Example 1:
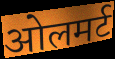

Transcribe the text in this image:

ओलमर्ट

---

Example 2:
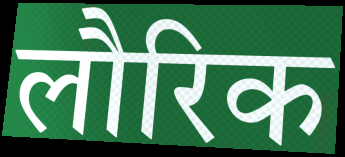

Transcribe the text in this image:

लौरिक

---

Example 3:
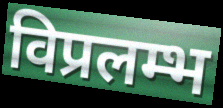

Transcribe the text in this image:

विप्रलम्भ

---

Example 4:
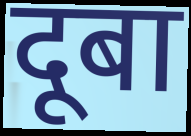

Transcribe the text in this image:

दूबा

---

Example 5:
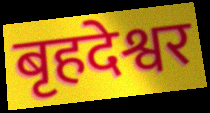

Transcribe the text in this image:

बृहदेश्वर